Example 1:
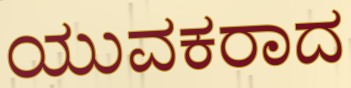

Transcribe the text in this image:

ಯುವಕರಾದ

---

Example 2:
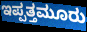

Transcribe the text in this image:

ಇಪ್ಪತ್ತಮೂರು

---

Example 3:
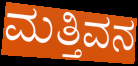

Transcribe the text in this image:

ಮತ್ತಿವನ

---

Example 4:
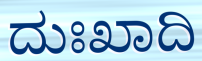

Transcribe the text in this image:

ದುಃಖಾದಿ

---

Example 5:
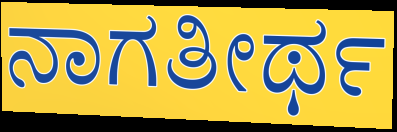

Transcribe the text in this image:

ನಾಗತೀರ್ಥ